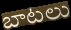
బాటలు